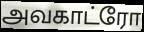
அவகாட்ரோ